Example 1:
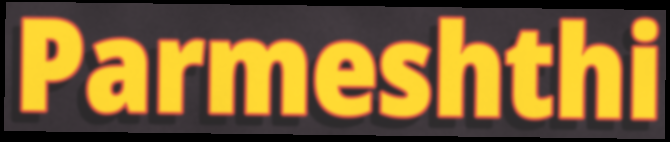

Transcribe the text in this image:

Parmeshthi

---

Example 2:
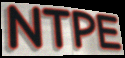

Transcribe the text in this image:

NTPE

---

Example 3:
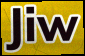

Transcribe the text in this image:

Jiw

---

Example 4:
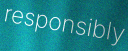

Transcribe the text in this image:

responsibly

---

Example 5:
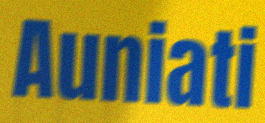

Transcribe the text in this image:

Auniati